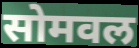
सोमवल